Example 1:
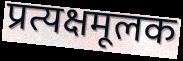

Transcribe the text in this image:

प्रत्यक्षमूलक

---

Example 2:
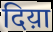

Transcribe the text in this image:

दिय़ा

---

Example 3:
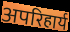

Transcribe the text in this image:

अपरिहार्य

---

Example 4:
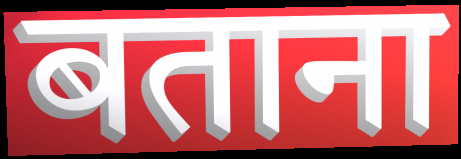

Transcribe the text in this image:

बताना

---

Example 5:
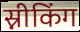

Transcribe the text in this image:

स्नीकिंग